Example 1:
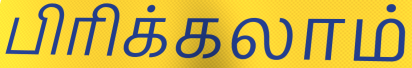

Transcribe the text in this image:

பிரிக்கலாம்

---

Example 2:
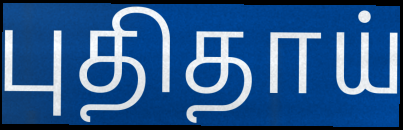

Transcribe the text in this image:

புதிதாய்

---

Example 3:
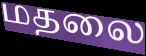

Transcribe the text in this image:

மதலை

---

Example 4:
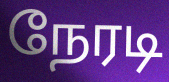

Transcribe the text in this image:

நேரடி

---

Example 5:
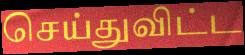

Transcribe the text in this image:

செய்துவிட்ட